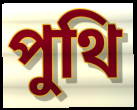
পুথি